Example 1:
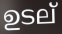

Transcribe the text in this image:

ഉടല്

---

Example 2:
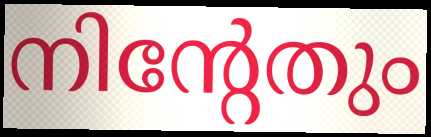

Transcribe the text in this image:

നിന്റേതും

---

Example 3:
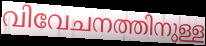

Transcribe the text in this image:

വിവേചനത്തിനുള്ള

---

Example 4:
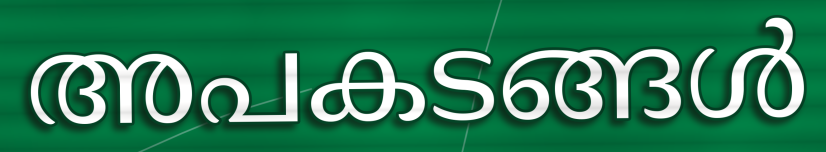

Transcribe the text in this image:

അപകടങ്ങൾ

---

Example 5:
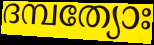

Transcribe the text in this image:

ദമ്പത്യോഃ